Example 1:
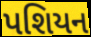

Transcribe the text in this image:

પશિયન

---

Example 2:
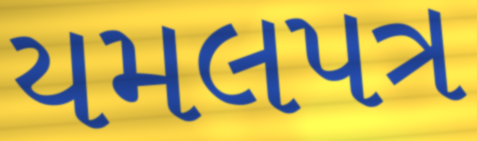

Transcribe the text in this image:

યમલપત્ર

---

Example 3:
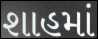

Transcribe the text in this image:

શાહમાં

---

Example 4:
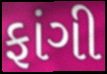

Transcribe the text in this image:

ફાંગી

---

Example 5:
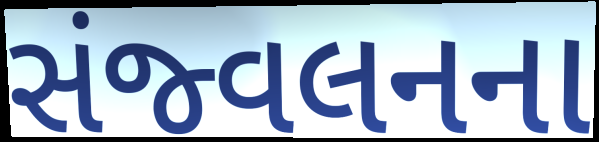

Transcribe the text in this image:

સંજ્વલનના